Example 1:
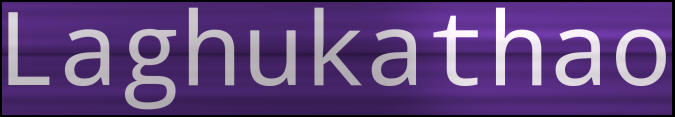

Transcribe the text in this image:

Laghukathao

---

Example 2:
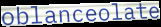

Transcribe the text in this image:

oblanceolate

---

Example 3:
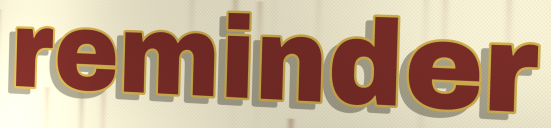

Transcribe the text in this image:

reminder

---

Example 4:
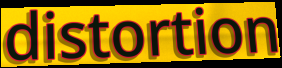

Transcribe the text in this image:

distortion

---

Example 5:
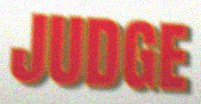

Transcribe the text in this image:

JUDGE